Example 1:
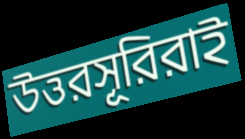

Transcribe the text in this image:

উত্তরসূরিরাই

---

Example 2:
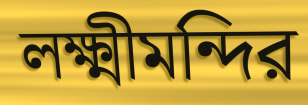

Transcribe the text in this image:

লক্ষ্মীমন্দির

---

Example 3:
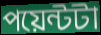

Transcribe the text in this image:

পয়েন্টটা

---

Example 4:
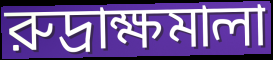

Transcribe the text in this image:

রুদ্রাক্ষমালা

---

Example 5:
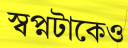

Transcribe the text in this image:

স্বপ্নটাকেও